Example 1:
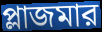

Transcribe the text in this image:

প্লাজমার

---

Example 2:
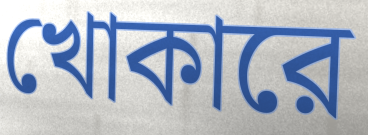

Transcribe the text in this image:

খোকারে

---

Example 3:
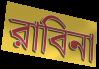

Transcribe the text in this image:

রাবিনা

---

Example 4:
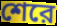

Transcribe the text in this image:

শেরে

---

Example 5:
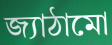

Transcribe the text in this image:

জ্যাঠামো